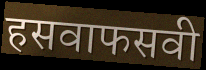
हसवाफसवी